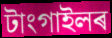
টাংগাইলৰ